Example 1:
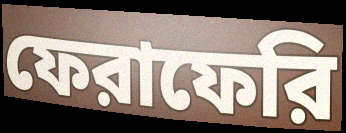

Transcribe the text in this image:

ফেরাফেরি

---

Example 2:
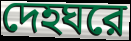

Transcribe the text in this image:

দেহঘরে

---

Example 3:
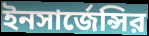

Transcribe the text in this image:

ইনসার্জেন্সির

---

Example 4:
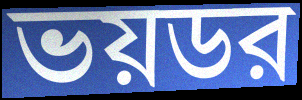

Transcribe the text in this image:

ভয়ডর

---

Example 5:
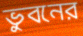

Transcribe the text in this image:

ভুবনের